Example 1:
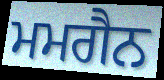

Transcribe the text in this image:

ਮਮਗੈਨ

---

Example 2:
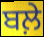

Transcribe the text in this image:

ਬਲ਼ੇ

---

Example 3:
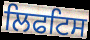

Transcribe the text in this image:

ਲਿਫਟਿਸ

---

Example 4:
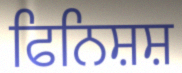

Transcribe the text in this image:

ਫਿਨਿਸ਼ਸ਼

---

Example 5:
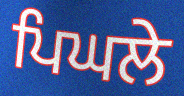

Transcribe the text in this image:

ਪਿਘਲੇ